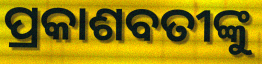
ପ୍ରକାଶବତୀଙ୍କୁ